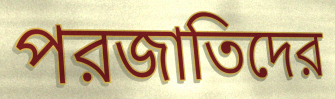
পরজাতিদের